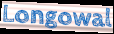
Longowal